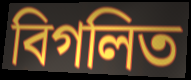
বিগলিত